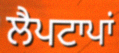
ਲੈਪਟਾਪਾਂ